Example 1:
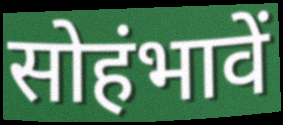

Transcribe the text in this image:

सोहंभावें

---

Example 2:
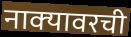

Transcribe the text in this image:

नाक्यावरची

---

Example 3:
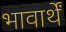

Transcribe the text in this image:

भावार्थें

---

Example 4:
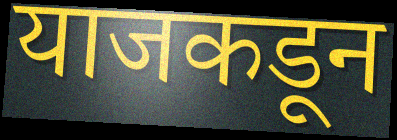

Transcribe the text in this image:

याजकडून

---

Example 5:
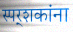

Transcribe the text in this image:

स्पर्शकांना